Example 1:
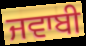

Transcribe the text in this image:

ਜਵਾਬੀ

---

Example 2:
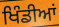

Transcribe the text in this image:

ਖਿੰਡੀਆਂ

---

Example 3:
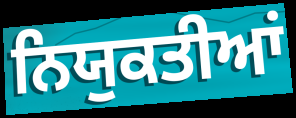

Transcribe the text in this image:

ਨਿਯੁਕਤੀਆਂ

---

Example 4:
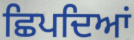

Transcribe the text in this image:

ਛਿਪਦਿਆਂ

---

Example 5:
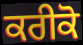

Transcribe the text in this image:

ਕਰੀਕੋ